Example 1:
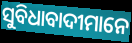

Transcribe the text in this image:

ସୁବିଧାବାଦୀମାନେ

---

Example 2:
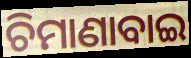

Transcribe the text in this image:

ଚିମାଣାବାଇ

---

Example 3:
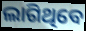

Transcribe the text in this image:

ଲାଗିଥିବେ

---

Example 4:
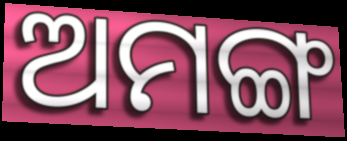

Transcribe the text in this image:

ଅମଙ୍ଗ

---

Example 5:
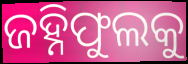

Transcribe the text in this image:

ଜହ୍ନିଫୁଲକୁ